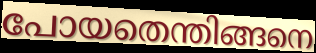
പോയതെന്തിങ്ങനെ